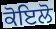
ਕੋਇਲੋ